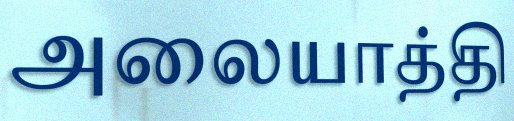
அலையாத்தி